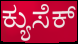
ಕ್ಯುಸೆಕ್